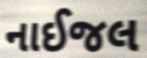
નાઈજલ